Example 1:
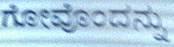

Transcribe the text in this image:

ಗೋವೊಂದನ್ನು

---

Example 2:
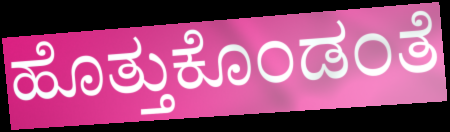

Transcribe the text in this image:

ಹೊತ್ತುಕೊಂಡಂತೆ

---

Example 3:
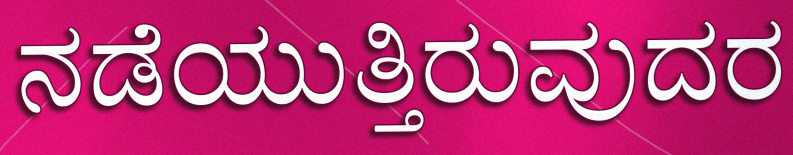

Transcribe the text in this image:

ನಡೆಯುತ್ತಿರುವುದರ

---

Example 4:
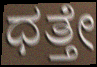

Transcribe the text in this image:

ಧತ್ತೇ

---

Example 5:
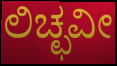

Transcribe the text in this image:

ಲಿಚ್ಛವೀ